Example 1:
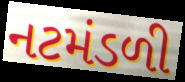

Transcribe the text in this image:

નટમંડળી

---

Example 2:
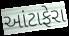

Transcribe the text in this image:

આંટાફેરા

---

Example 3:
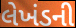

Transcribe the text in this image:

લેખંડની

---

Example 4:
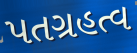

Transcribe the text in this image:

પતગ્રહત્વ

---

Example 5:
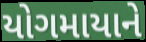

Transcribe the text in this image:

યોગમાયાને